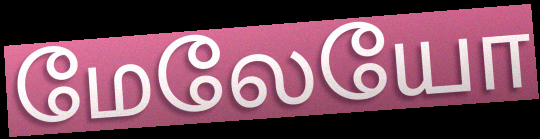
மேலேயோ